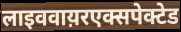
लाइववाय़रएक्सपेक्टेड